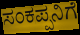
ಸಂಕಪ್ಪನಿಗೆ